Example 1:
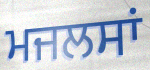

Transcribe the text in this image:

ਮਜਲਸਾਂ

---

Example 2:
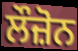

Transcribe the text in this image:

ਲੌਜ਼ੋਨ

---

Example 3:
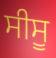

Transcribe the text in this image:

ਸੀਸੂ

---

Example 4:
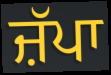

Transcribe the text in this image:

ਜ਼ੱਪਾ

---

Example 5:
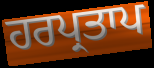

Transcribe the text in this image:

ਹਰਪ੍ਰਤਾਪ